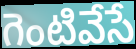
గెంటివేసే